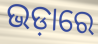
ଭଡ଼ାରେ